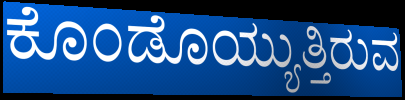
ಕೊಂಡೊಯ್ಯುತ್ತಿರುವ